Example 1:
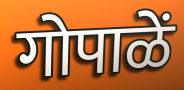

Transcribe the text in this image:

गोपाळें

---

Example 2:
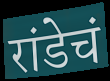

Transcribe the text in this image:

रांडेचं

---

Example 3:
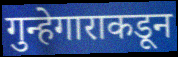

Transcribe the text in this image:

गुन्हेगाराकडून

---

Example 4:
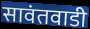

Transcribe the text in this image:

सावंतवाडी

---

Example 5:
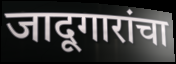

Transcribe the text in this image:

जादूगारांचा